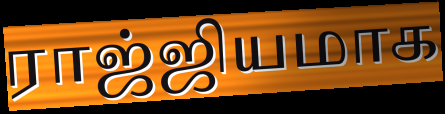
ராஜ்ஜியமாக